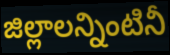
జిల్లాలన్నింటినీ